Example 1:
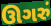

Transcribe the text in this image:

ઊગરું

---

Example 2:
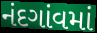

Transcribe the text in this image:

નંદગાંવમાં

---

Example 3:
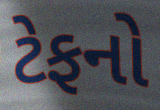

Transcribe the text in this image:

ટેફનો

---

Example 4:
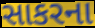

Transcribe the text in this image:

સાકરના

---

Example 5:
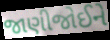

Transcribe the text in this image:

જાણીજોઈને